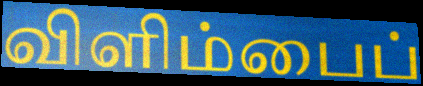
விளிம்பைப்